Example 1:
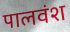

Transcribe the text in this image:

पालवंश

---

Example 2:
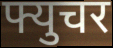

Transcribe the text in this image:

फ्युचर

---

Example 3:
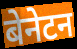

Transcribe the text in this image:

बेनेटन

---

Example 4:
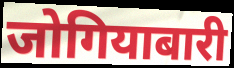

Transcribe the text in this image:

जोगियाबारी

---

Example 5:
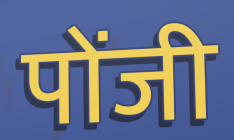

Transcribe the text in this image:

पोंजी